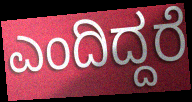
ಎಂದಿದ್ದರೆ